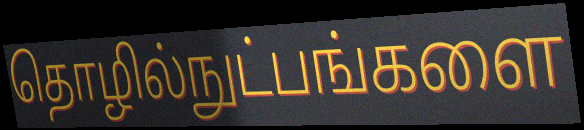
தொழில்நுட்பங்களை